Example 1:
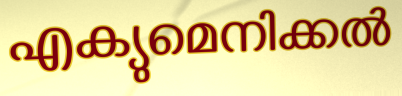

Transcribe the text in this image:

എക്യുമെനിക്കൽ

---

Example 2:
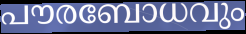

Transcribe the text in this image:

പൗരബോധവും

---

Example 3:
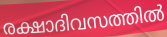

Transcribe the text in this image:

രക്ഷാദിവസത്തിൽ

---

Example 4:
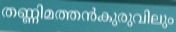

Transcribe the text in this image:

തണ്ണിമത്തൻകുരുവിലും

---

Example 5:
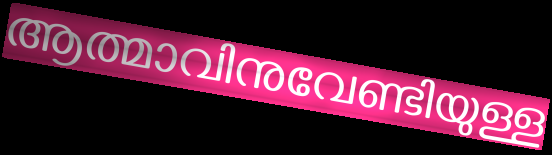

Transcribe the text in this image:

ആത്മാവിനുവേണ്ടിയുള്ള